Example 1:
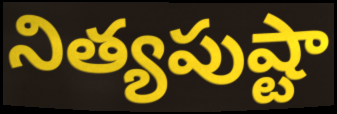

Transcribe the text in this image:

నిత్యపుష్టా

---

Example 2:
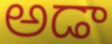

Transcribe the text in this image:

అడా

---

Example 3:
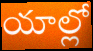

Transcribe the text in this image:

యాల్లో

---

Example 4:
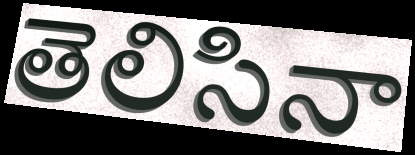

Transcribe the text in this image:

తెలిసినా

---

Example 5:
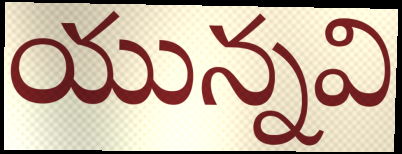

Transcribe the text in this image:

యున్నవి